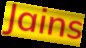
Jains